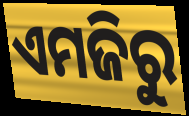
ଏମଜିରୁ